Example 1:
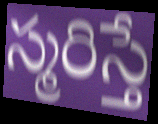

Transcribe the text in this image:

స్మరిస్తే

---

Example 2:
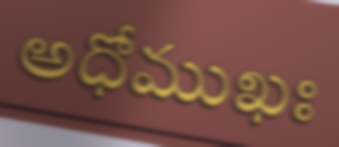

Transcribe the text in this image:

అధోముఖః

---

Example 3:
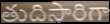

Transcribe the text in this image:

తుదిసారిగా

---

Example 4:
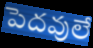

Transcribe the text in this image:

పెదవులే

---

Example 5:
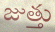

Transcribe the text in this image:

జుత్తు